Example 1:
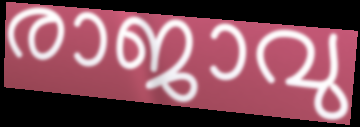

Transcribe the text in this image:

രാജാവു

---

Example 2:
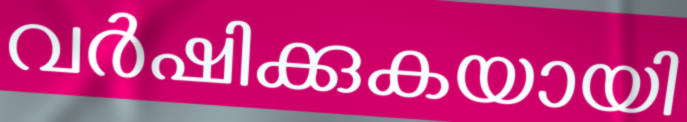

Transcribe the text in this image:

വർഷിക്കുകയായി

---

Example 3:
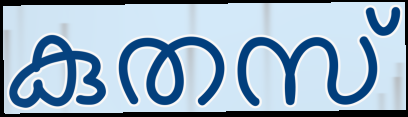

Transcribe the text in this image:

കുതസ്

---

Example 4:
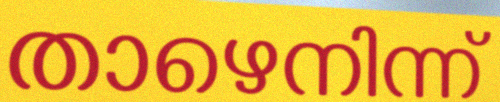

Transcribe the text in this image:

താഴെനിന്ന്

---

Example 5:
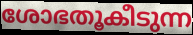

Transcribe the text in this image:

ശോഭതൂകീടുന്ന